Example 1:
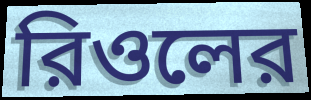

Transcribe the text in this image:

রিওলের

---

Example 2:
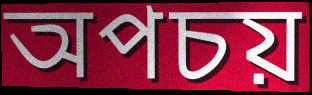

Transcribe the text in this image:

অপচয়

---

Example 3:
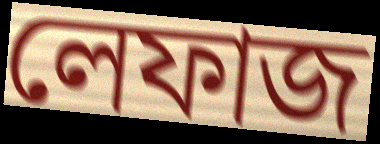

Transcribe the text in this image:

লেফাজ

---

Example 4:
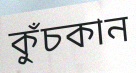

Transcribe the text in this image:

কুঁচকান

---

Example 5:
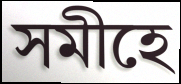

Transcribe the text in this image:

সমীহে